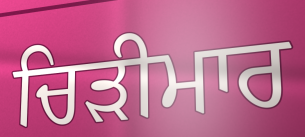
ਚਿੜੀਮਾਰ